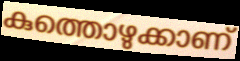
കുത്തൊഴുക്കാണ്